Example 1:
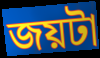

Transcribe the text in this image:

জয়টা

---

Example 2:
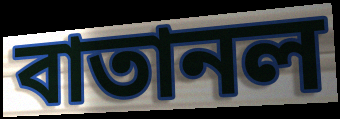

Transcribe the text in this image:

বাতানল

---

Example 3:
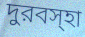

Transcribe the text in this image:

দুরবস্হা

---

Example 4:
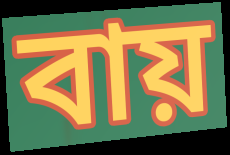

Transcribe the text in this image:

বায়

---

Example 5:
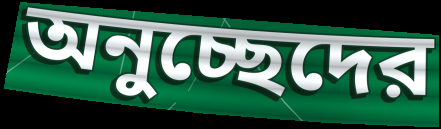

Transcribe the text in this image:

অনুচ্ছেদের